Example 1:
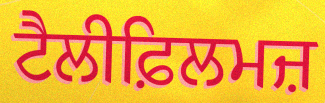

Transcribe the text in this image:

ਟੈਲੀਫ਼ਿਲਮਜ਼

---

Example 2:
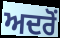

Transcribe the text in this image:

ਅਦਰੋਂ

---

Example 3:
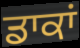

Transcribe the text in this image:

ਡਾਕਾਂ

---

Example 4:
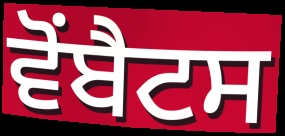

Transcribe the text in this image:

ਵੋਂਬੈਟਸ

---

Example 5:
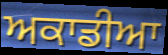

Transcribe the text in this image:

ਅਕਾਡੀਆ